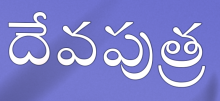
దేవపుత్ర